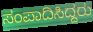
ಸಂಪಾದಿಸಿದ್ದರು